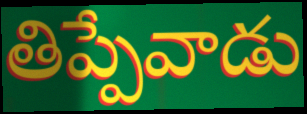
తిప్పేవాడు